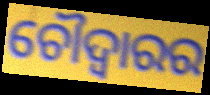
ଚୌଦ୍ୱାରର